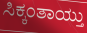
ಸಿಕ್ಕಂತಾಯ್ತು